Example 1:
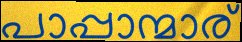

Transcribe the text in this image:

പാപ്പാന്മാര്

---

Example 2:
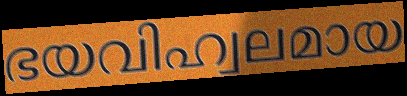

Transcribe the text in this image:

ഭയവിഹ്വലമായ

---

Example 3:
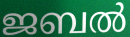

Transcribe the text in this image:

ജബൽ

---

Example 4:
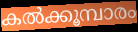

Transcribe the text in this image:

കൽക്കൂമ്പാരം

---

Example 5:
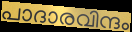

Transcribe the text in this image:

പാദാരവിന്ദം